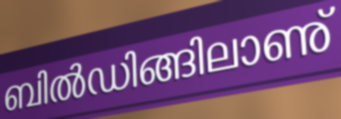
ബിൽഡിങ്ങിലാണു്